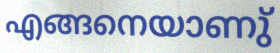
എങ്ങനെയാണു്